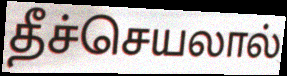
தீச்செயலால்